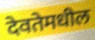
देवतेमधील